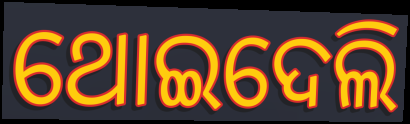
ଥୋଇଦେଲି